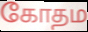
கோதம